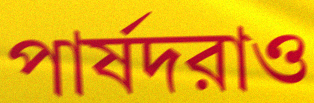
পার্ষদরাও